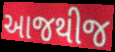
આજથીજ